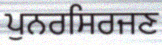
ਪੁਨਰਸਿਰਜਣ